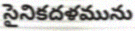
సైనికదళమును